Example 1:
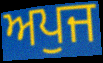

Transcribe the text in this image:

ਅਪੁਜ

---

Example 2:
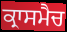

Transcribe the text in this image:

ਕ੍ਰਾਸਮੈਚ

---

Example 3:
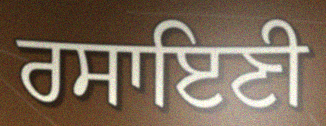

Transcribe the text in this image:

ਰਸਾਇਣੀ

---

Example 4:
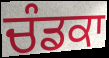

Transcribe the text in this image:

ਚੰਡਕਾ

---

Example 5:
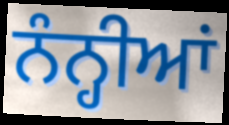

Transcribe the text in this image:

ਨੰਨ੍ਹੀਆਂ